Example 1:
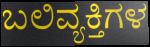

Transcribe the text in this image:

ಬಲಿವ್ಯಕ್ತಿಗಳ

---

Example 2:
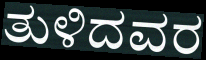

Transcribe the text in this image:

ತುಳಿದವರ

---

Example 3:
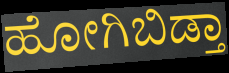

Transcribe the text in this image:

ಹೋಗಿಬಿಡ್ತಾ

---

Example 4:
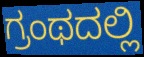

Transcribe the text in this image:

ಗ್ರಂಥದಲ್ಲಿ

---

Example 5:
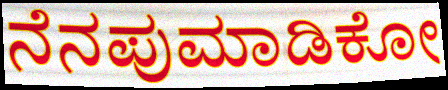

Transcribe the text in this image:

ನೆನಪುಮಾಡಿಕೋ